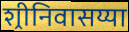
श्रीनिवासय्या